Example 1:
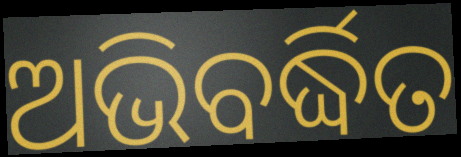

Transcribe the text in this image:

ଅଭିବର୍ଦ୍ଧିତ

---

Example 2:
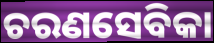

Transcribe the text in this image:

ଚରଣସେବିକା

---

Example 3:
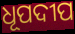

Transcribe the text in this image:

ଧୂପଦୀପ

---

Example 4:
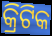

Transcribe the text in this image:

କ୍ରିଟିକ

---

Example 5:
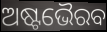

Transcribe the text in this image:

ଅଷ୍ଟଭୈରବ